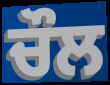
ਚੌਲ